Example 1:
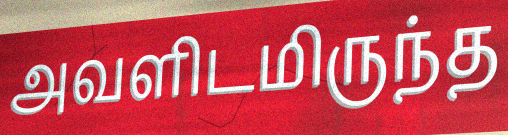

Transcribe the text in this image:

அவளிடமிருந்த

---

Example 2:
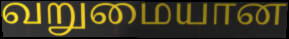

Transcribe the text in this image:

வறுமையான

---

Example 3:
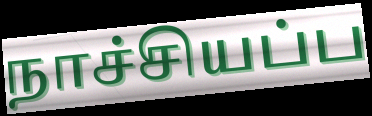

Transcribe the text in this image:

நாச்சியப்ப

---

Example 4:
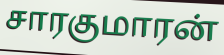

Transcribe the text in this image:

சாரகுமாரன்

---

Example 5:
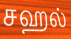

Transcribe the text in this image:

சஹல்